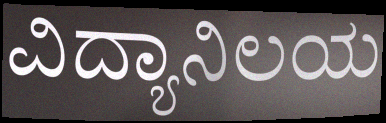
ವಿದ್ಯಾನಿಲಯ